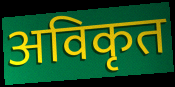
अविकृत